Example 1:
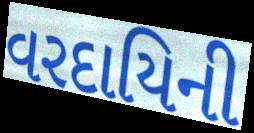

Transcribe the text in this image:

વરદાયિની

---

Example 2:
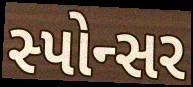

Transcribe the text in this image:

સ્પોન્સર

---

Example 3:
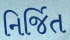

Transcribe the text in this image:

નિર્જિત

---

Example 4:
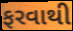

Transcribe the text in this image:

ફરવાથી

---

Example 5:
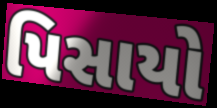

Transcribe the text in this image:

પિસાયો